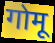
गोमू